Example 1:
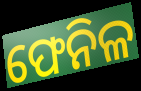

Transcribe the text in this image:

ଫେନିଳ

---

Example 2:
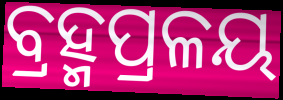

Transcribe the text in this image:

ବ୍ରହ୍ମପ୍ରଳୟ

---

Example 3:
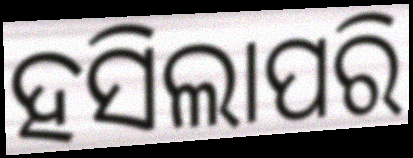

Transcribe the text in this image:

ହସିଲାପରି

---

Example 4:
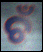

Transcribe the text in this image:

ଚଁ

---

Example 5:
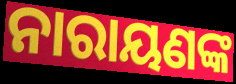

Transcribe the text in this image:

ନାରାୟଣଙ୍କ